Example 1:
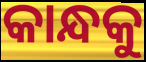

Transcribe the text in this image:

କାନ୍ଧକୁ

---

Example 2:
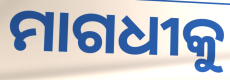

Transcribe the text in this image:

ମାଗଧୀକୁ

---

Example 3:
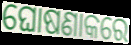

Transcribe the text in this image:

ଘୋଷଣାକରେ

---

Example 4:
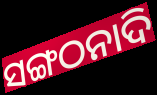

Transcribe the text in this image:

ସଙ୍ଗଠନାଦି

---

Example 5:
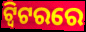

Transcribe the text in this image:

ଟ୍ବିଟରରେ